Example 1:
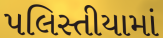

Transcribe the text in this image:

પલિસ્તીયામાં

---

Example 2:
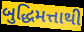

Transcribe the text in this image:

બુદ્ધિમત્તાથી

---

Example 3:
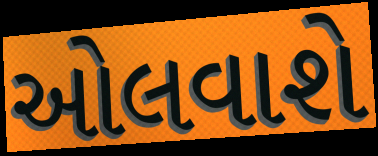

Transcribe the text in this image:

ઓલવાશે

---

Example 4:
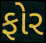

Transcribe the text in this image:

ફોર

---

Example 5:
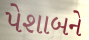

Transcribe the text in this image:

પેશાબને